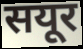
सयूर